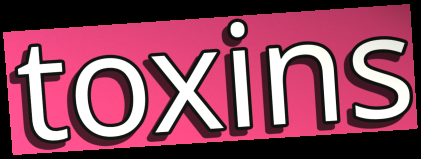
toxins